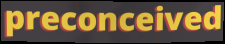
preconceived